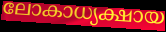
ലോകാധ്യക്ഷായ